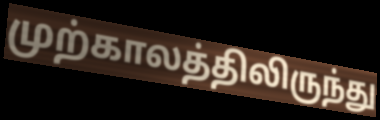
முற்காலத்திலிருந்து